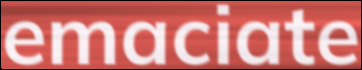
emaciate